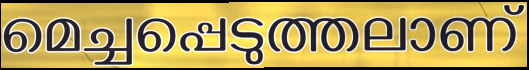
മെച്ചപ്പെടുത്തലാണ്